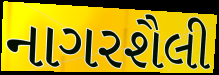
નાગરશૈલી